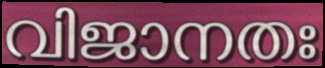
വിജാനതഃ